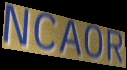
NCAOR